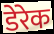
डेरेक